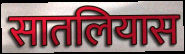
सातलियास